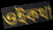
ওইকথা